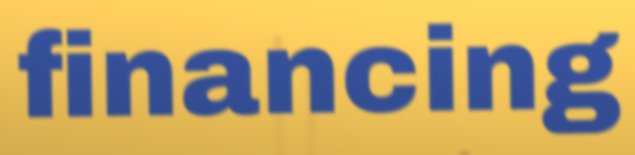
financing